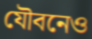
যৌবনেও